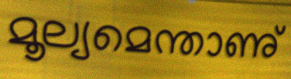
മൂല്യമെന്താണു്